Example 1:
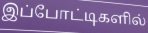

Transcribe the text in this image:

இப்போட்டிகளில்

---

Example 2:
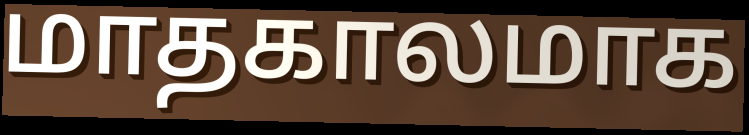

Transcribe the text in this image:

மாதகாலமாக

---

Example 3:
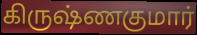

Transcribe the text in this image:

கிருஷ்ணகுமார்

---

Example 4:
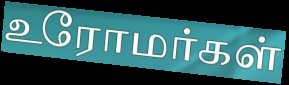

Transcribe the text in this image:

உரோமர்கள்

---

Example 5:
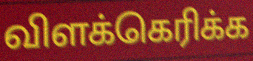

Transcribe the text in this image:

விளக்கெரிக்க